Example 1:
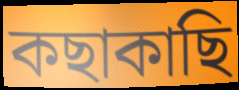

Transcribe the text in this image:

কছাকাছি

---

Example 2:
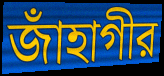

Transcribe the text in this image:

জাঁহাগীর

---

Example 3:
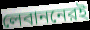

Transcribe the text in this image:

লেবাননেরই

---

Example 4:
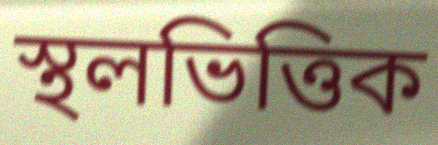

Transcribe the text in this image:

স্থলভিত্তিক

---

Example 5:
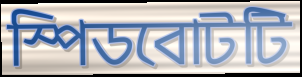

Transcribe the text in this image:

স্পিডবোটটি